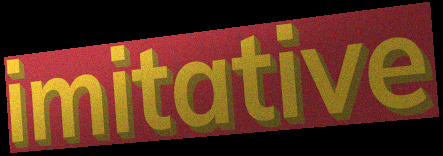
imitative